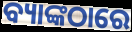
ବ୍ୟାଙ୍କଠାରେ